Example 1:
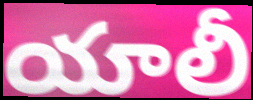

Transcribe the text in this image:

యాలీ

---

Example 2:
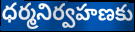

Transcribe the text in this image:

ధర్మనిర్వహణకు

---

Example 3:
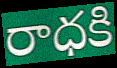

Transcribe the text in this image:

రాధకి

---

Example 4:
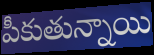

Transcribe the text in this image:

పీకుతున్నాయి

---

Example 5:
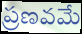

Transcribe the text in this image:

ప్రణవమే